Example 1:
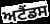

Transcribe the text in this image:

ਅਟੈਂਡਸ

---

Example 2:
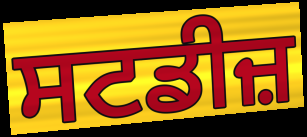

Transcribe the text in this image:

ਸਟਡੀਜ਼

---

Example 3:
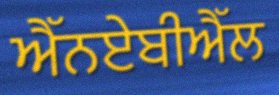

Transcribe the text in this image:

ਐੱਨਏਬੀਐੱਲ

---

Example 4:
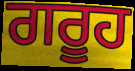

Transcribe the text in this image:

ਗਰੂਹ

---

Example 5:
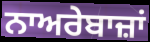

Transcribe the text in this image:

ਨਾਅਰੇਬਾਜ਼ਾਂ